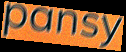
pansy